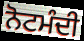
ਨੋਟਮੰਦੀ